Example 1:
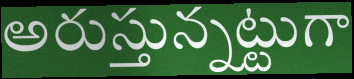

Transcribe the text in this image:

అరుస్తున్నట్టుగా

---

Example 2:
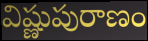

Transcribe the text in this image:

విష్ణుపురాణం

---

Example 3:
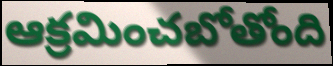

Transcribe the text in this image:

ఆక్రమించబోతోంది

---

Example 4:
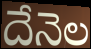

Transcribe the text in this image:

దేనెల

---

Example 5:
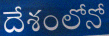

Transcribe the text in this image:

దేశంలోనో